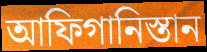
আফিগানিস্তান